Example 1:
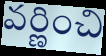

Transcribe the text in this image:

వర్ణించి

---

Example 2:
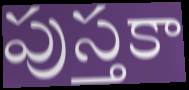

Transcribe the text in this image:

పుస్తకా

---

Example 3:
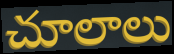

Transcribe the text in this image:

చూలాలు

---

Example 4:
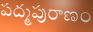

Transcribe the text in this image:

పద్మపురాణం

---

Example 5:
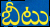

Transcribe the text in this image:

బీటు